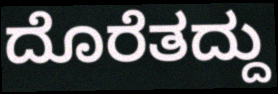
ದೊರೆತದ್ದು